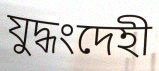
যুদ্ধংদেহী